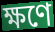
ক্ষণে